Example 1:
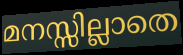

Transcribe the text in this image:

മനസ്സില്ലാതെ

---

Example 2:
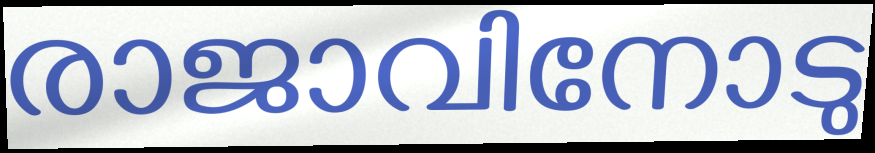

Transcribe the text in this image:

രാജാവിനോടു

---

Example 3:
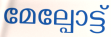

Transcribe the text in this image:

മേല്പോട്ട്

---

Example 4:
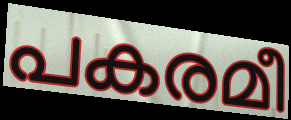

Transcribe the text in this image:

പകരമീ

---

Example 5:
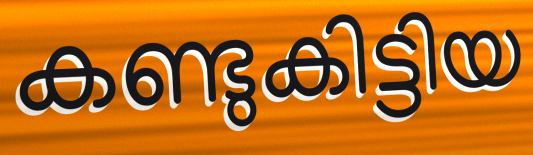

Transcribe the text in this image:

കണ്ടുകിട്ടിയ